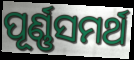
ପୂର୍ଣ୍ଣସମର୍ଥ